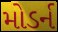
મોડર્ન